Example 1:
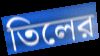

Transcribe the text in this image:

তিলের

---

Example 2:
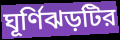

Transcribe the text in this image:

ঘূর্ণিঝড়টির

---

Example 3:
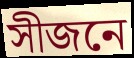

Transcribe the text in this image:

সীজনে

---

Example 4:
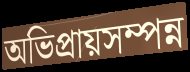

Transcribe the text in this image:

অভিপ্রায়সম্পন্ন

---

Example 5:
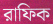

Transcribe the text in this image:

রাফিক